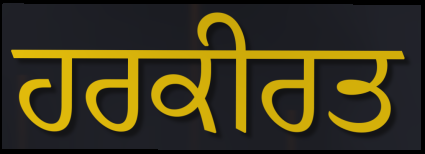
ਹਰਕੀਰਤ